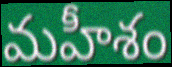
మహీశం